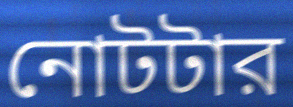
নোটটার